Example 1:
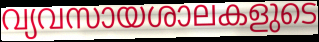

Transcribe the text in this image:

വ്യവസായശാലകളുടെ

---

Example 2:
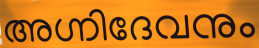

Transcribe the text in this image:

അഗ്നിദേവനും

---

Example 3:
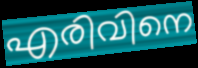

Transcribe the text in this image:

എരിവിനെ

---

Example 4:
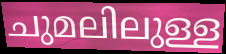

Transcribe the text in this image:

ചുമലിലുള്ള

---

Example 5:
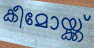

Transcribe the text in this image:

കീമോയ്ക്ക്